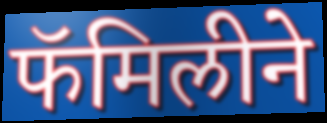
फॅमिलीने